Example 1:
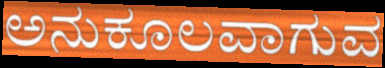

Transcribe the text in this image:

ಅನುಕೂಲವಾಗುವ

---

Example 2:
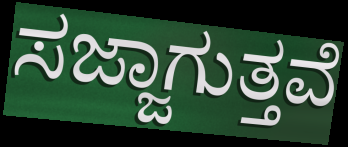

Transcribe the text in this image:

ಸಜ್ಜಾಗುತ್ತವೆ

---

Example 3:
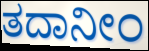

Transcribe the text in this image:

ತದಾನೀಂ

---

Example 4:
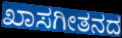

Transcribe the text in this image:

ಖಾಸಗೀತನದ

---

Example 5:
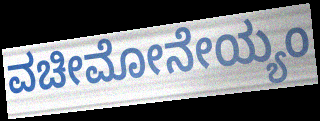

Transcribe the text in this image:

ವಚೀಮೋನೇಯ್ಯಂ